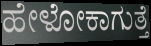
ಹೇಳೋಕಾಗುತ್ತೆ